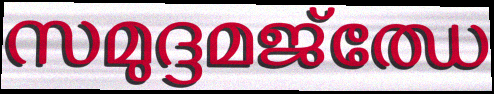
സമുദ്ദമജ്ഝേ